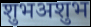
शुभअशुभ